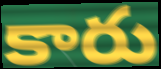
కారు